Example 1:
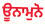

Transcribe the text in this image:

ਊਨਾਮੁਨੋ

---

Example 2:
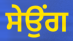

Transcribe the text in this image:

ਸੇਉਂਗ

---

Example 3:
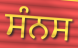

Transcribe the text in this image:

ਸੰਨਸ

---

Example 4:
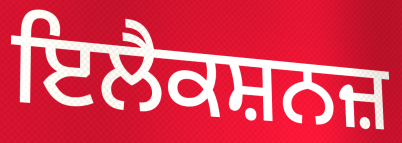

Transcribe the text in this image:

ਇਲੈਕਸ਼ਨਜ਼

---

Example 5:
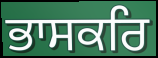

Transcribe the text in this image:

ਭਾਸਕਰਿ